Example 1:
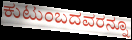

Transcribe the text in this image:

ಕುಟುಂಬದವರನ್ನೂ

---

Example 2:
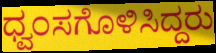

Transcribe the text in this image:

ಧ್ವಂಸಗೊಳಿಸಿದ್ದರು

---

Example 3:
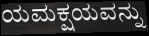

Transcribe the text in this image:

ಯಮಕ್ಷಯವನ್ನು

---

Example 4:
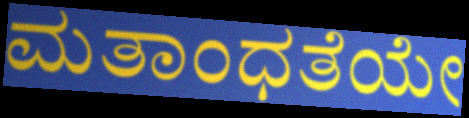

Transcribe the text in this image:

ಮತಾಂಧತೆಯೇ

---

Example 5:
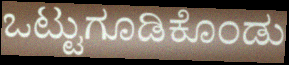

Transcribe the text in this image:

ಒಟ್ಟುಗೂಡಿಕೊಂಡು